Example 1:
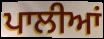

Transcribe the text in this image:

ਪਾਲੀਆਂ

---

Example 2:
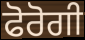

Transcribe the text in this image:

ਫੋਰੋਗੀ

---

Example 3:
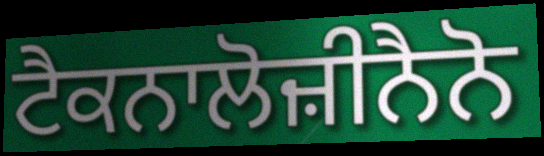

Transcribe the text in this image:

ਟੈਕਨਾਲੋਜ਼ੀਨੈਨੋ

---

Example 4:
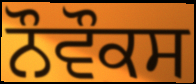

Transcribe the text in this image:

ਨੌਵੌਕਸ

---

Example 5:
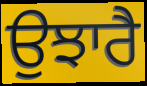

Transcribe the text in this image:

ਉਝਾਰੈ